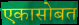
एकासोबत